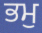
ਭਮੁ